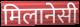
मिलानेसी